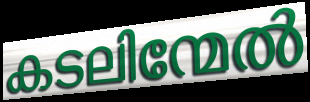
കടലിന്മേൽ